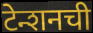
टेन्शनची